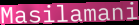
Masilamani